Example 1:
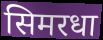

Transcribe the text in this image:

सिमरधा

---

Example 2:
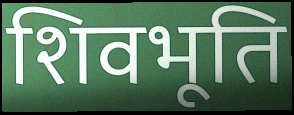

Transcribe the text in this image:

शिवभूति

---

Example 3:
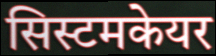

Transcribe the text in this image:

सिस्टमकेयर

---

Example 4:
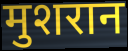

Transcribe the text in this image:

मुशरान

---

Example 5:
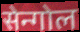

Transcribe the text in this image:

सेन्गोल